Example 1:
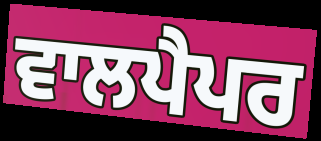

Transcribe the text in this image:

ਵਾਲਪੈਪਰ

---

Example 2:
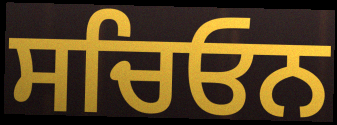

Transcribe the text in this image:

ਸਚਿਓਨ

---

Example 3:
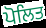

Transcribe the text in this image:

ਪੋਲਿਤ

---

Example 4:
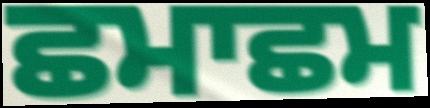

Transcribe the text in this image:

ਛਮਾਛਮ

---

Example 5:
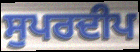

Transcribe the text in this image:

ਸੁਪਰਦੀਪ